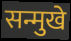
सन्मुखे